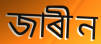
জাৰীন